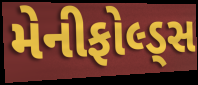
મેનીફોલ્ડ્સ